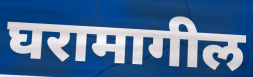
घरामागील